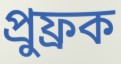
প্রুফ্রক